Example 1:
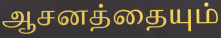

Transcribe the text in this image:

ஆசனத்தையும்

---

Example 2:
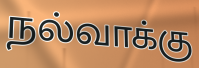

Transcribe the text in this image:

நல்வாக்கு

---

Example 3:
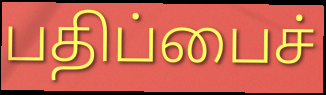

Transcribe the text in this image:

பதிப்பைச்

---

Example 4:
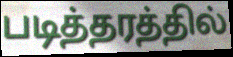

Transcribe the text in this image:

படித்தரத்தில்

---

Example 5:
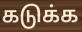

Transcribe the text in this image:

கடுக்க